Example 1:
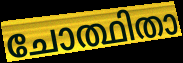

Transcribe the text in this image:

ചോത്ഥിതാ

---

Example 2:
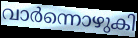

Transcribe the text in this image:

വാർന്നൊഴുകി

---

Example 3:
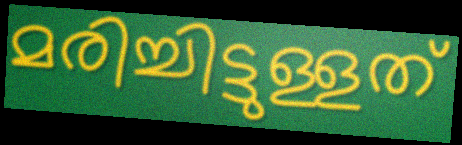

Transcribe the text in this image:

മരിച്ചിട്ടുള്ളത്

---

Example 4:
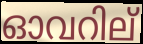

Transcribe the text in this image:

ഓവറില്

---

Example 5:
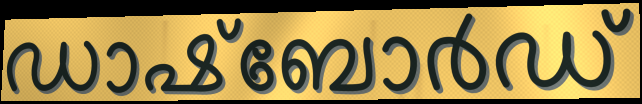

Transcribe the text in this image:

ഡാഷ്ബോർഡ്